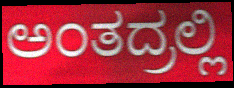
ಅಂತದ್ರಲ್ಲಿ